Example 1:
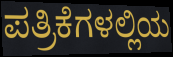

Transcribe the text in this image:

ಪತ್ರಿಕೆಗಳಲ್ಲಿಯ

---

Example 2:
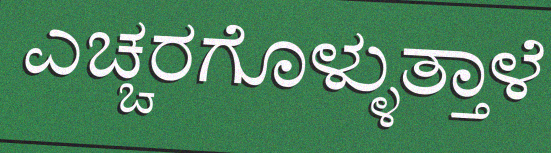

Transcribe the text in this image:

ಎಚ್ಚರಗೊಳ್ಳುತ್ತಾಳೆ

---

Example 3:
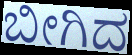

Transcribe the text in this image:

ಬೀಗಿದ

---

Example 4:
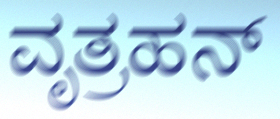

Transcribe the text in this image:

ವೃತ್ರಹನ್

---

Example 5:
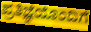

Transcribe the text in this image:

ಪ್ರತಿಜ್ಞೆಯೊಂದಿಗೆ